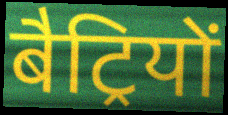
बैट्रियों